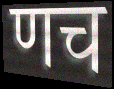
णच